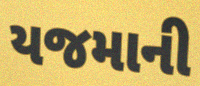
યજમાની